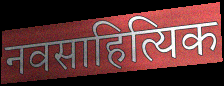
नवसाहित्यिक